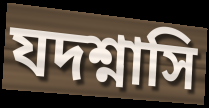
যদশ্নাসি